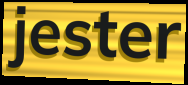
jester